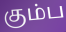
கும்ப